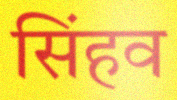
सिंहव